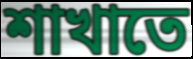
শাখাতে